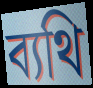
ব্যথি